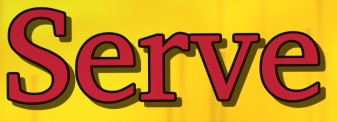
Serve